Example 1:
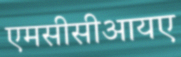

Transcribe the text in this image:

एमसीसीआयए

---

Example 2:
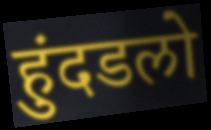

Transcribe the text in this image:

हुंदडलो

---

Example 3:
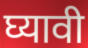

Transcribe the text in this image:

घ्यावी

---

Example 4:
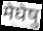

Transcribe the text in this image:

मेघेषु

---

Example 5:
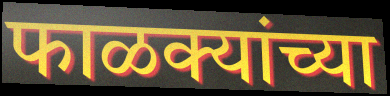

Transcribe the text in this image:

फाळक्यांच्या